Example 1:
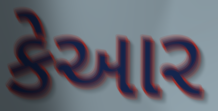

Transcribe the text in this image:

કેઆર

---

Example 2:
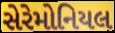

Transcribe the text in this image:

સેરેમોનિયલ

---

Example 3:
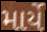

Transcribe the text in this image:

માર્યે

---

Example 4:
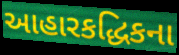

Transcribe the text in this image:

આહારકદ્ધિકના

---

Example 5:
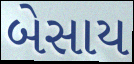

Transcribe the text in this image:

બેસાય